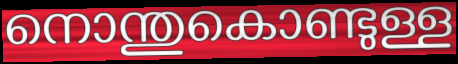
നൊന്തുകൊണ്ടുള്ള